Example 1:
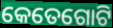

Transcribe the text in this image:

କେତେଗୋଟି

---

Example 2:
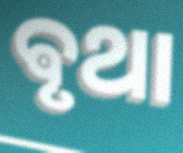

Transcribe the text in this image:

ଵୃଥା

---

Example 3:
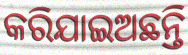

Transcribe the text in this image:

କରିଯାଇଅଛନ୍ତି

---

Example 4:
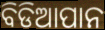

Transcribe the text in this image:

ବିଡିଆପାନ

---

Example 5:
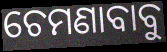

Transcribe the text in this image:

ଚେମଣାବାବୁ